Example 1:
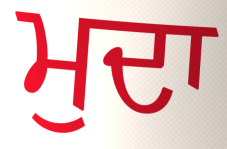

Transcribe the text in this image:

ਮੁਦਾ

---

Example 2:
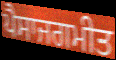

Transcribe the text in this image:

ਪੈਸਾਜਗਮੀਤ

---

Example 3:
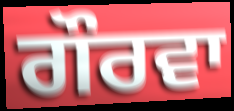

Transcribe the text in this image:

ਗੌਰਵਾ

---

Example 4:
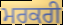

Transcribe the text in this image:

ਮਰਕਰੀ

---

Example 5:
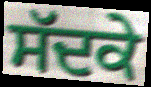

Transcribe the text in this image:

ਸੱਦਕੇ